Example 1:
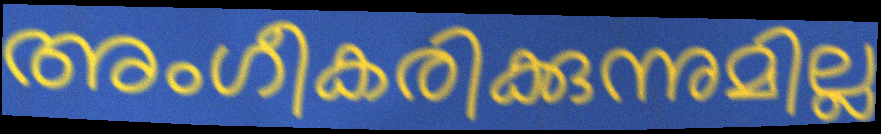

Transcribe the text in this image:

അംഗീകരിക്കുന്നുമില്ല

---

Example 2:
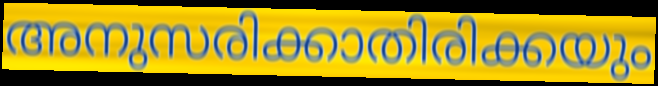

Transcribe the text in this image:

അനുസരിക്കാതിരിക്കയും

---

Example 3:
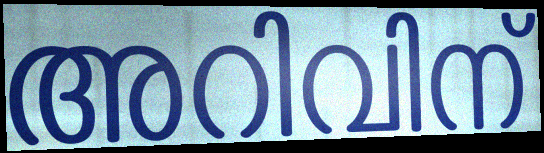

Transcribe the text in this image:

അറിവിന്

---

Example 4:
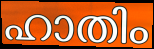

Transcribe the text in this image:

ഹാതിം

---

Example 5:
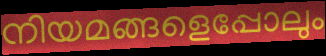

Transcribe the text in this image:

നിയമങ്ങളെപ്പോലും